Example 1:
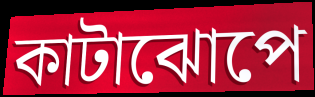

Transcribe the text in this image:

কাটাঝোপে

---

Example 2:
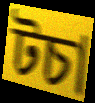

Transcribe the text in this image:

টচা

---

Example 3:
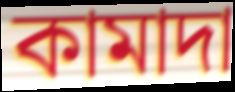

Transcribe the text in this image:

কামাদা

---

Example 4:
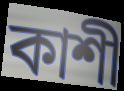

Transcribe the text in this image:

কাশী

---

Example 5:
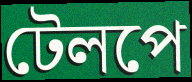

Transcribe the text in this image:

টেলপে